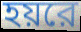
হয়রে